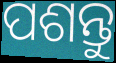
ପଶନ୍ତୁ